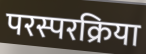
परस्परक्रिया